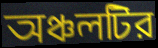
অঞ্চলটির